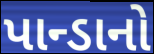
પાન્ડાનો